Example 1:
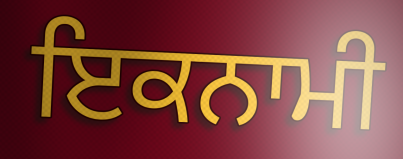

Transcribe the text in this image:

ਇਕਨਾਮੀ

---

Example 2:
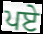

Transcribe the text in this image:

ਪਏ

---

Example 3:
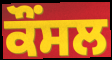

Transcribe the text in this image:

ਕੌਂਸਲ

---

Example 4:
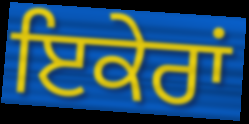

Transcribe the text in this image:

ਇਕੇਰਾਂ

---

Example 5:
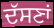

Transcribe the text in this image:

ਦੱਸਣਾਂ